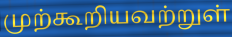
முற்கூறியவற்றுள்